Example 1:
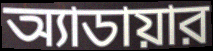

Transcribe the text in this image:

অ্যাডায়ার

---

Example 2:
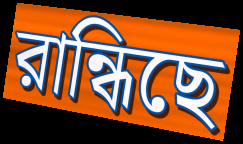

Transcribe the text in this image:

রান্ধিছে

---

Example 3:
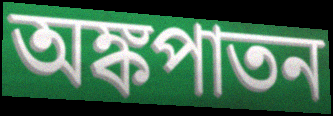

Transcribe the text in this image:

অঙ্কপাতন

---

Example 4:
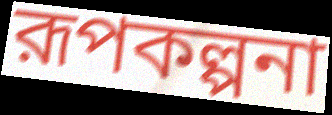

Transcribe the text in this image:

রূপকল্পনা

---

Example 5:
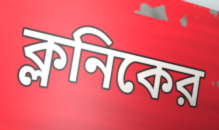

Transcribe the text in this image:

ক্লনিকের